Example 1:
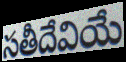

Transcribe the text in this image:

సతీదేవియే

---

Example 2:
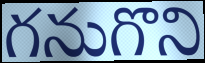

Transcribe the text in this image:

గనుగొని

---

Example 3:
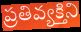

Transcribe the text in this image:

ప్రతివ్యక్తిని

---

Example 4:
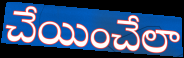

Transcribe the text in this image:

చేయించేలా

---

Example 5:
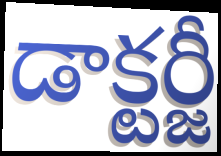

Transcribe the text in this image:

డాక్టర్జీ